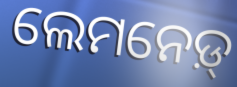
ଲେମନେଡ଼୍